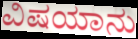
ವಿಷಯಾನು